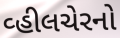
વ્હીલચેરનો